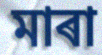
মাৰা